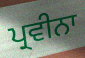
ਪ੍ਰਵੀਨਾ